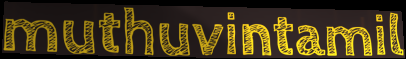
muthuvintamil